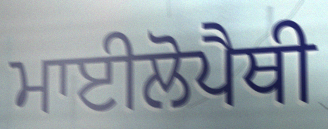
ਮਾਈਲੋਪੈਥੀ